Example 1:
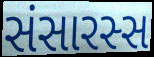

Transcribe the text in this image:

સંસારસ્સ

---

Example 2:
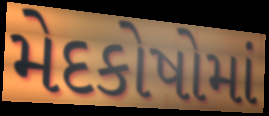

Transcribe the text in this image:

મેદકોષોમાં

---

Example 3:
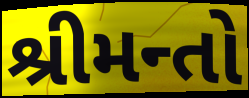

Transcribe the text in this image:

શ્રીમન્તો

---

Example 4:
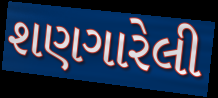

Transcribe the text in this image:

શણગારેલી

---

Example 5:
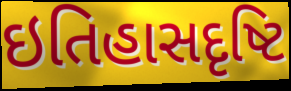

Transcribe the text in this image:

ઇતિહાસદૃષ્ટિ